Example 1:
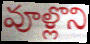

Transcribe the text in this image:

వూళ్లొని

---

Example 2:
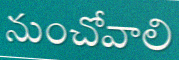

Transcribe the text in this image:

నుంచోవాలి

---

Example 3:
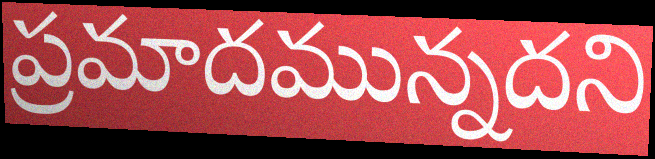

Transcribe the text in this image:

ప్రమాదమున్నదని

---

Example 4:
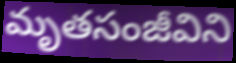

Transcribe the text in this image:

మృతసంజీవిని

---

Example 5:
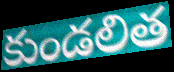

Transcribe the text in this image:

కుండలిత